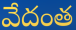
వేదంత